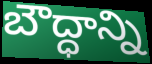
బౌద్ధాన్ని